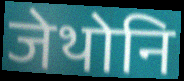
जेथोनि